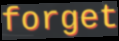
forget